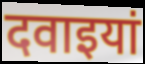
दवाइयां